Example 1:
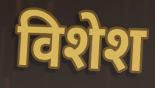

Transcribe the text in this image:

विशेश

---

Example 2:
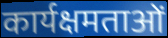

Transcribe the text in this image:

कार्यक्षमताओं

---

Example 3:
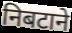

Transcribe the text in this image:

निबटाने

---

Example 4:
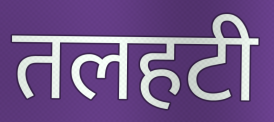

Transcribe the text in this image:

तलहटी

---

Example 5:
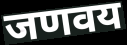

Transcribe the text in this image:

जणवय